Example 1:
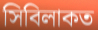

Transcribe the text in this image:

সিবিলাকত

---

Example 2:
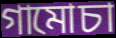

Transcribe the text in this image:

গামোচা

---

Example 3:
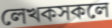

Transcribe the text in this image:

লেখকসকলে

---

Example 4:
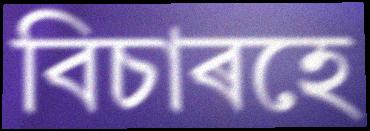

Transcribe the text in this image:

বিচাৰহে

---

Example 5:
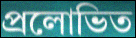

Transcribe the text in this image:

প্ৰলোভিত